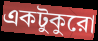
একটুকুরো